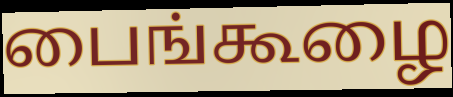
பைங்கூழை